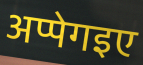
अप्पेगइए